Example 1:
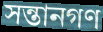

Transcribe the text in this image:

সন্তানগণ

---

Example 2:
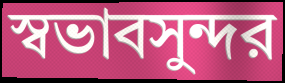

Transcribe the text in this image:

স্বভাবসুন্দর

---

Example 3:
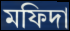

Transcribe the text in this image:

মফিদা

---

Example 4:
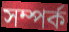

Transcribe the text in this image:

সম্পর্ক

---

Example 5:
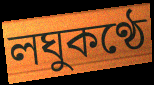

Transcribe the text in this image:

লঘুকণ্ঠে